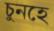
চুনহে